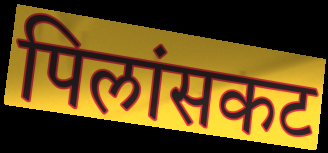
पिलांसकट